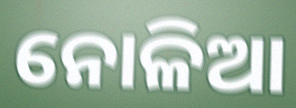
ନୋଳିଆ